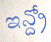
ఇన్ద్రో